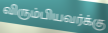
விரும்பியவர்க்கு